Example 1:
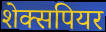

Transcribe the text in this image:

शेक्सपियर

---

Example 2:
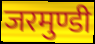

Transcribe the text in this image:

जरमुण्डी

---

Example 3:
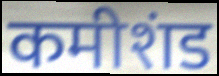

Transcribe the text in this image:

कमीशंड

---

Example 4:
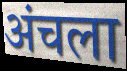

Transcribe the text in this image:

अंचला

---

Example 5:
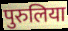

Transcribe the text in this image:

पुरुलिया